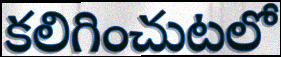
కలిగించుటలో